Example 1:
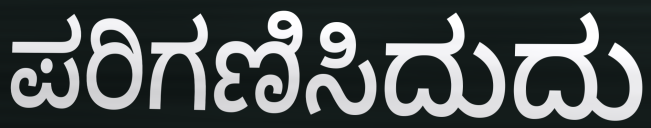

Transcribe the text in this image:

ಪರಿಗಣಿಸಿದುದು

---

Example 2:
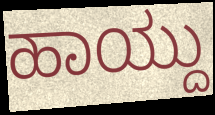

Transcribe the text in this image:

ಹಾಯ್ದು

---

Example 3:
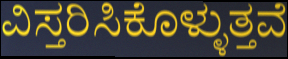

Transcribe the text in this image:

ವಿಸ್ತರಿಸಿಕೊಳ್ಳುತ್ತವೆ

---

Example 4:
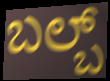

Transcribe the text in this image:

ಬಲ್ಬ್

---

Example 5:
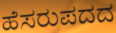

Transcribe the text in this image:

ಹೆಸರುಪದದ